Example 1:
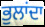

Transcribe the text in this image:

ਭੁਲਾਂਦਾ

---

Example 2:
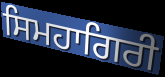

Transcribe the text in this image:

ਸਿਮਹਾਗਿਰੀ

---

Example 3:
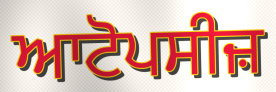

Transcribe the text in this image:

ਆਟੋਪਸੀਜ਼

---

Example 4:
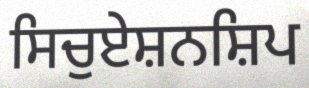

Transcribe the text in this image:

ਸਿਚੁਏਸ਼ਨਸ਼ਿਪ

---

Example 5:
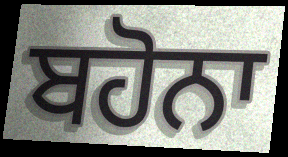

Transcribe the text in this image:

ਬਹੋਨਾ